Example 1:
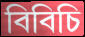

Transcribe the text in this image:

বিবিচি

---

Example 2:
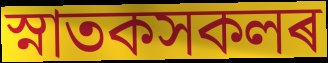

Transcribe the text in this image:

স্নাতকসকলৰ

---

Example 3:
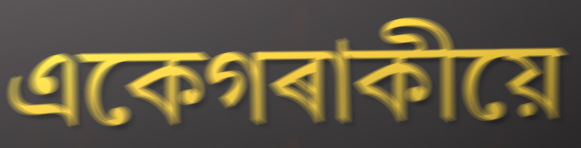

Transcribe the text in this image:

একেগৰাকীয়ে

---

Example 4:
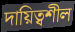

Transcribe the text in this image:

দায়িত্বশীল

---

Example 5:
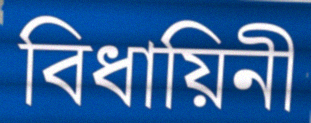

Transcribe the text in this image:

বিধায়িনী